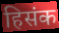
हिसंक